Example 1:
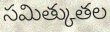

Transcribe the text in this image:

సమిత్కుతల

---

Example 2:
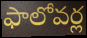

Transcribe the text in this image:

ఫాలోవర్ల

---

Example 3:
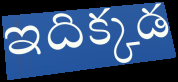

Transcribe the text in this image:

ఇదిక్కడ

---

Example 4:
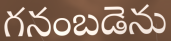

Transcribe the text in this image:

గనంబడెను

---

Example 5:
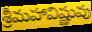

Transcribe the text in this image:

శ్రీమహావిష్ణువు